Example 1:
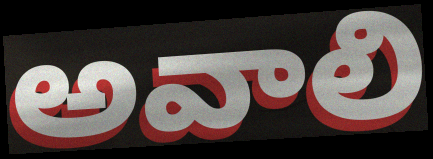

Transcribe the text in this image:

అవాలి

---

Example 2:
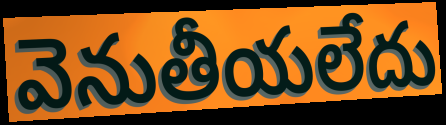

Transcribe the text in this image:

వెనుతీయలేదు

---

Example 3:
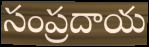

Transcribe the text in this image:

సంప్రదాయ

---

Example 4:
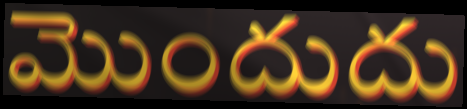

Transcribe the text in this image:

మొందుదు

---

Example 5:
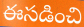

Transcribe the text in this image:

ఈసడించి